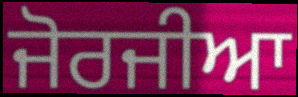
ਜੋਰਜੀਆ